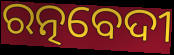
ରତ୍ନବେଦୀ